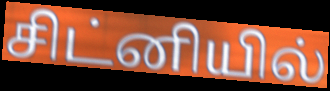
சிட்னியில்